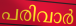
പരിവാർ